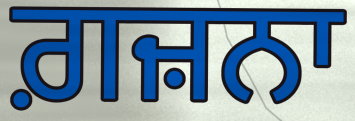
ਗ਼ਜ਼ਨਾ